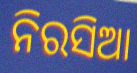
ନିରସିଆ